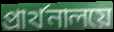
প্রার্থনালয়ে